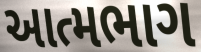
આત્મભાગ